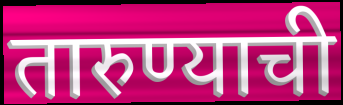
तारुण्याची